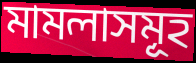
মামলাসমূহ